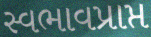
સ્વભાવપ્રાપ્ત